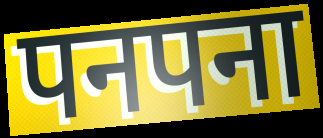
पनपना